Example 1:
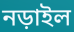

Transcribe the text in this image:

নড়াইল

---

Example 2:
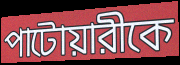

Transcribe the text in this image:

পাটোয়ারীকে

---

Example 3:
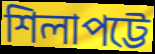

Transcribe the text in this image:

শিলাপট্টে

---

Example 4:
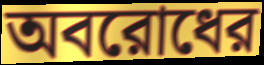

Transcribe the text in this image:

অবরোধের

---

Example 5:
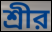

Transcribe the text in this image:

শ্রীর